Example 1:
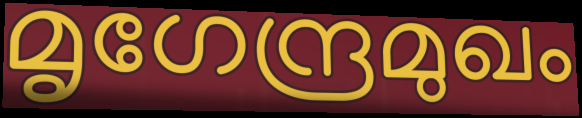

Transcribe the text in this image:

മൃഗേന്ദ്രമുഖം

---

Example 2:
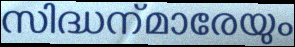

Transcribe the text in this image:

സിദ്ധന്‌മാരേയും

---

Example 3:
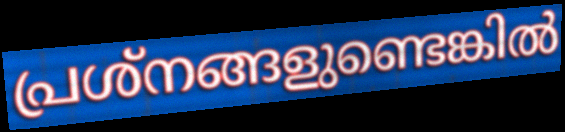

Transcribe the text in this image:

പ്രശ്നങ്ങളുണ്ടെങ്കിൽ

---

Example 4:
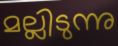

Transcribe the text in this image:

മല്ലിടുന്നു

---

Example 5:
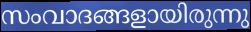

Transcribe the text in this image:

സംവാദങ്ങളായിരുന്നു